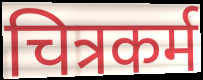
चित्रकर्म